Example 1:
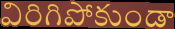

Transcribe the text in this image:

విరిగిపోకుండా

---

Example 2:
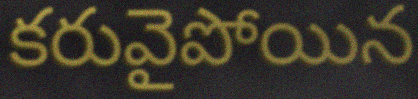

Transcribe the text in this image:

కరువైపోయిన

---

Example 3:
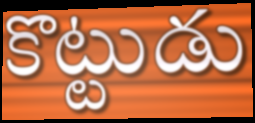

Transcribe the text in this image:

కొట్టుడు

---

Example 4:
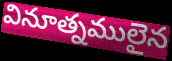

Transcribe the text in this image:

వినూత్నములైన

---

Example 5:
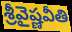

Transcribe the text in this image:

శ్రీవైష్ణవీతి